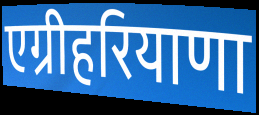
एग्रीहरियाणा